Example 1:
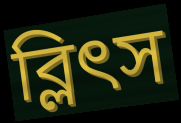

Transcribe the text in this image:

ব্লিৎস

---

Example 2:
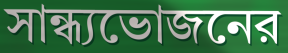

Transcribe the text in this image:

সান্ধ্যভোজনের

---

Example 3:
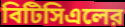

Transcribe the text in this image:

বিটিসিএলের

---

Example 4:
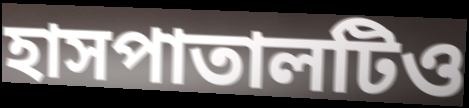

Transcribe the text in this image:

হাসপাতালটিও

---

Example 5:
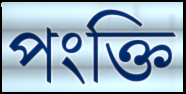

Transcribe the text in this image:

পংক্তি